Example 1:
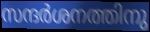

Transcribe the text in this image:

സന്ദർശനത്തിനു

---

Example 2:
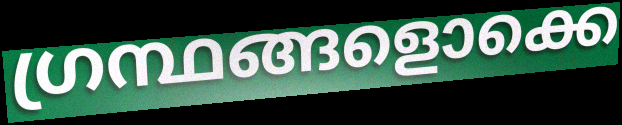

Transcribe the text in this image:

ഗ്രന്ഥങ്ങളൊക്കെ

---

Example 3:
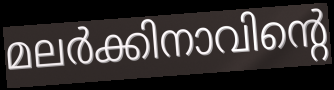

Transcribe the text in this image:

മലർക്കിനാവിന്റെ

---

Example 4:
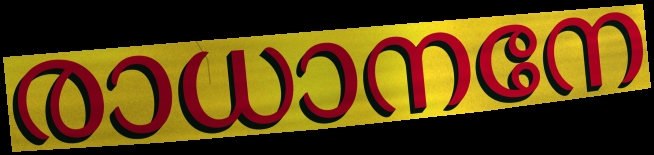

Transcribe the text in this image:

രാധാനനേ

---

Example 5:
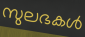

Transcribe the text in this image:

സുലഭകൾ